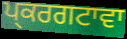
ਪ੍ਕਰਗਟਾਵਾ